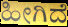
ಹೀಗಿದೆ